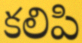
కలిపి